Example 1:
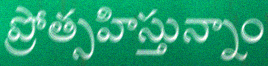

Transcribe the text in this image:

ప్రోత్సహిస్తున్నాం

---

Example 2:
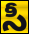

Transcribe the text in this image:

సీ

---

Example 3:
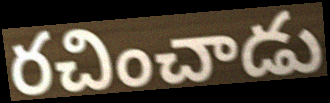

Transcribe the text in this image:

రచించాడు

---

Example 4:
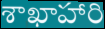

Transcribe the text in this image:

శాఖాహారి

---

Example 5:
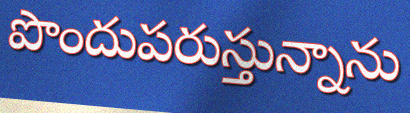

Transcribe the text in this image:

పొందుపరుస్తున్నాను